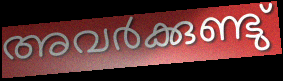
അവർക്കുണ്ടു്